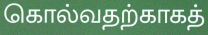
கொல்வதற்காகத்